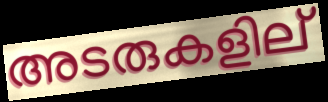
അടരുകളില്